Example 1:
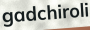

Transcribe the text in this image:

gadchiroli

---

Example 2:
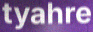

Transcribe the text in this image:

tyahre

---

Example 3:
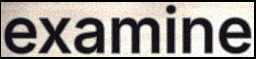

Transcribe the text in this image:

examine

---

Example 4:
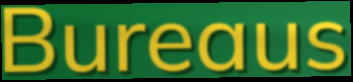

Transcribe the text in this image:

Bureaus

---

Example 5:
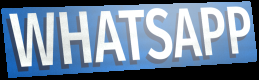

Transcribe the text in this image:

WHATSAPP